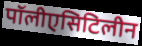
पॉलीएसिटिलीन